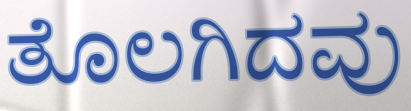
ತೊಲಗಿದವು